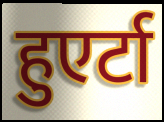
हुएर्टा